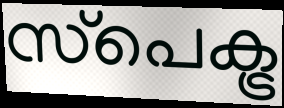
സ്‌പെക്ട്ര